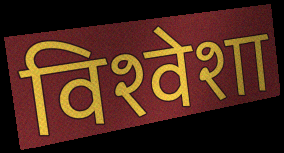
विश्वेशा